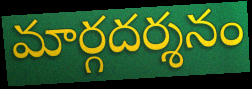
మార్గదర్శనం